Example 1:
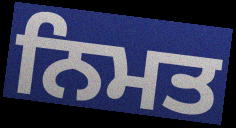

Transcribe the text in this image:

ਨਿਮਤ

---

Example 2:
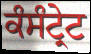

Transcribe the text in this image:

ਕੰਸੰਟ੍ਰੇਟ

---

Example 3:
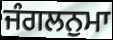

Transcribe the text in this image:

ਜੰਗਲਨੁਮਾ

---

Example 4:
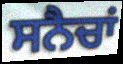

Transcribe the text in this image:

ਸਨੈਚਾਂ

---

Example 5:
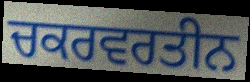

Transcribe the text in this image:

ਚਕਰਵਰਤੀਨ